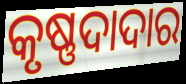
କୃଷ୍ଣଦାଦାର